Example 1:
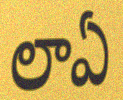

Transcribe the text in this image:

లాఏ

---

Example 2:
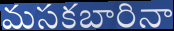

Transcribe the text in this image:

మసకబారినా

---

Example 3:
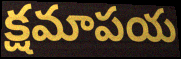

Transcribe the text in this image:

క్షమాపయ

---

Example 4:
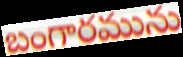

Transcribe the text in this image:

బంగారమును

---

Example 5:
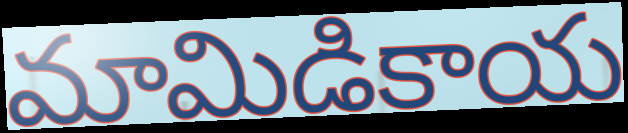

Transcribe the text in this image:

మామిడికాయ